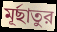
মূর্ছাতুর